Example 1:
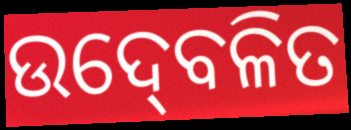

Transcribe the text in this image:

ଉଦ୍‍ବେଳିତ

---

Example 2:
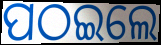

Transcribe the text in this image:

ପଠଇଲେ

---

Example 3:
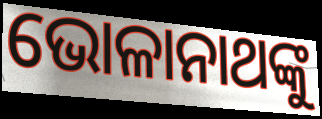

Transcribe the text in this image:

ଭୋଳାନାଥଙ୍କୁ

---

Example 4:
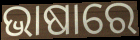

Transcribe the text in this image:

ଭାଷାରେ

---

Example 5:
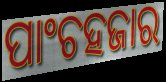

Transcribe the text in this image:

ପାଂଚହଜାର